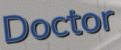
Doctor